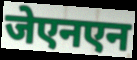
जेएनएन